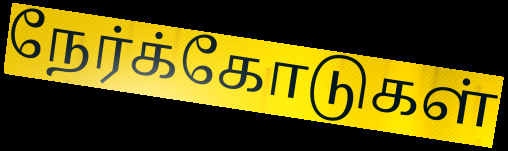
நேர்க்கோடுகள்